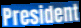
President